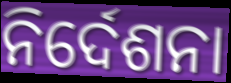
ନିର୍ଦେଶନା